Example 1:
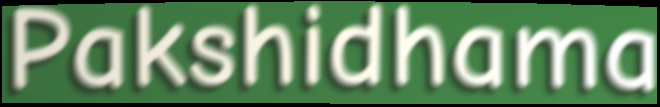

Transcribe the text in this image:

Pakshidhama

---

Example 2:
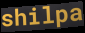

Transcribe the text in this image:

shilpa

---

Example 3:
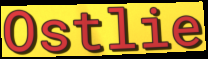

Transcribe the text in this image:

Ostlie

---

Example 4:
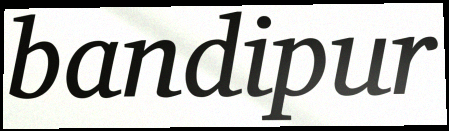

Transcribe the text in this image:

bandipur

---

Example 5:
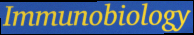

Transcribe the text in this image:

Immunobiology